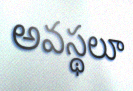
అవస్థలూ